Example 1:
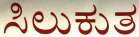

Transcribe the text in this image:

ಸಿಲುಕುತ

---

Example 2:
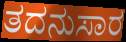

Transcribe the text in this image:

ತದನುಸಾರ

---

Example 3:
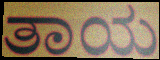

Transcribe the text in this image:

ತಾಯ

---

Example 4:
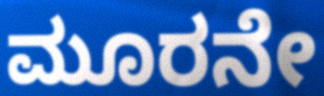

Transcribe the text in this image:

ಮೂರನೇ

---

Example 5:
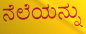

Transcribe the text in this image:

ನೆಲೆಯನ್ನು